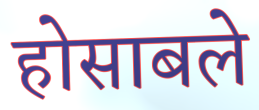
होसाबले